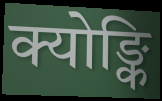
क्योङ्कि